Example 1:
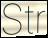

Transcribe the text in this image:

Str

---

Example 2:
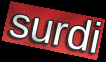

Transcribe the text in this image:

surdi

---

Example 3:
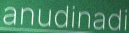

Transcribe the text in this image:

anudinadi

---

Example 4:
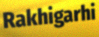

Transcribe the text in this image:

Rakhigarhi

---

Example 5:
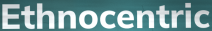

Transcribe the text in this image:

Ethnocentric